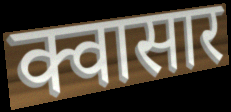
क्वासार